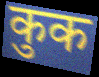
कुक